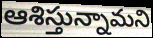
ఆశిస్తున్నామని